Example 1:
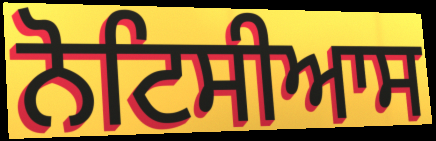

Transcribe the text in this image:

ਨੋਟਿਸੀਆਸ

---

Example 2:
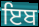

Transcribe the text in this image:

ਇਬ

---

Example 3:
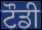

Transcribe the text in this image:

ਟੌਡੀ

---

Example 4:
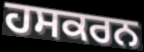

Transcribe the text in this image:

ਹਸਕਰਨ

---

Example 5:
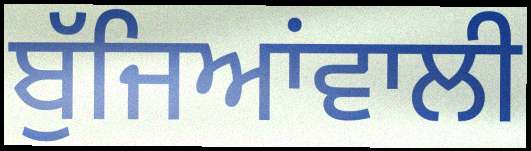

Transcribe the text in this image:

ਬੁੱਜਿਆਂਵਾਲੀ